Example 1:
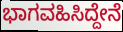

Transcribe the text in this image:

ಭಾಗವಹಿಸಿದ್ದೇನೆ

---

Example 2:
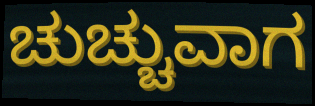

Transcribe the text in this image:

ಚುಚ್ಚುವಾಗ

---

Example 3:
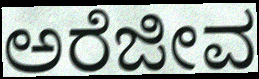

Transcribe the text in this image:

ಅರೆಜೀವ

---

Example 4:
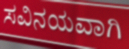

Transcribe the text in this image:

ಸವಿನಯವಾಗಿ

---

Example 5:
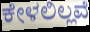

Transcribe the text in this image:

ಕೇಳಲಿಲ್ಲವೆ